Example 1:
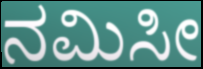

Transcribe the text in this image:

ನಮಿಸೀ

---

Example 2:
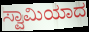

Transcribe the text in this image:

ಸ್ವಾಮಿಯಾದ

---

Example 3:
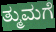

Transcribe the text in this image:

ತ್ಮುಮಗೆ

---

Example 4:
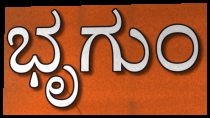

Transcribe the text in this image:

ಭೃಗುಂ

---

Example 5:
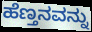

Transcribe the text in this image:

ಹೆಣ್ತನವನ್ನು